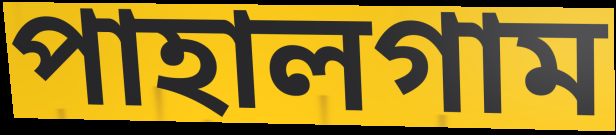
পাহালগাম